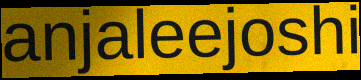
anjaleejoshi